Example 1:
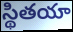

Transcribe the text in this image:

స్థితయా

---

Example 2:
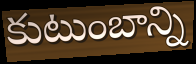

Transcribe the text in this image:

కుటుంబాన్ని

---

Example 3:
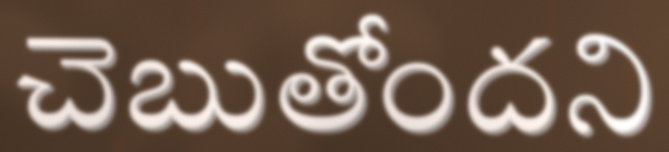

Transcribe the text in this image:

చెబుతోందని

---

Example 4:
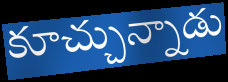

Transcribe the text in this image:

కూచ్చున్నాడు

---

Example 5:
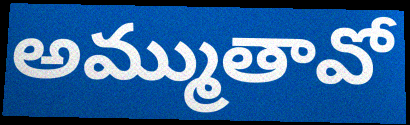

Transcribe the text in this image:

అమ్ముతావో